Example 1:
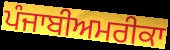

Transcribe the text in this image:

ਪੰਜਾਬੀਅਮਰੀਕਾ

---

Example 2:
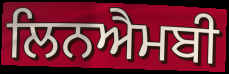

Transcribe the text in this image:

ਲਿਨਐਮਬੀ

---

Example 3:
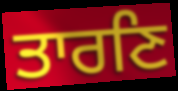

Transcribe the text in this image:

ਤਾਰਣਿ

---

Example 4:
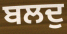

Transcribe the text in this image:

ਬਲਦੁ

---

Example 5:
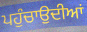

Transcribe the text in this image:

ਪਹੁੰਚਾਉਦੀਆਂ